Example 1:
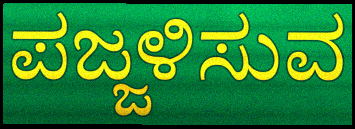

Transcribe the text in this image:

ಪಜ್ಜಳಿಸುವ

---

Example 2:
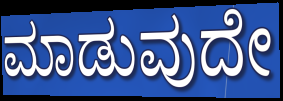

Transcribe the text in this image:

ಮಾಡುವುದೇ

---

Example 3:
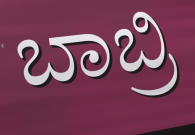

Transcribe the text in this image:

ಬಾಬ್ರಿ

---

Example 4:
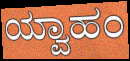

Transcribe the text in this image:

ಯ್ವಾಹಂ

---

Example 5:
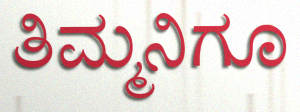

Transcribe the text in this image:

ತಿಮ್ಮನಿಗೂ